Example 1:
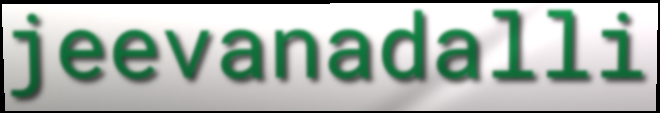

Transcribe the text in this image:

jeevanadalli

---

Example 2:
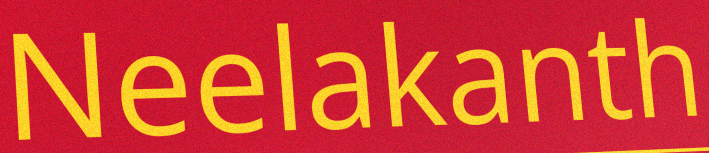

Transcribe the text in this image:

Neelakanth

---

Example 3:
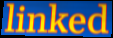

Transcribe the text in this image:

linked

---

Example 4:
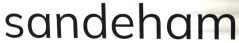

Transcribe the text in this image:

sandeham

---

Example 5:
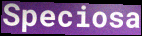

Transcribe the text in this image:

Speciosa